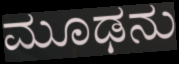
ಮೂಢನು